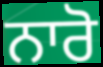
ਨਾਰੋ